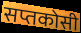
सप्तकोसी